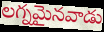
లగ్నమైనవాడు